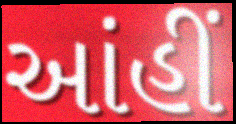
આંહીં